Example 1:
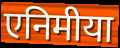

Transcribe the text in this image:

एनिमीया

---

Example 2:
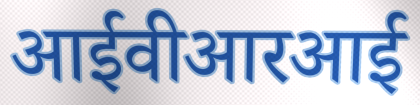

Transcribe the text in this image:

आईवीआरआई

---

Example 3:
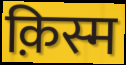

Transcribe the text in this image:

क़िस्‍म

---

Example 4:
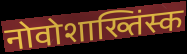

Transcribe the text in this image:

नोवोशाख्तिंस्क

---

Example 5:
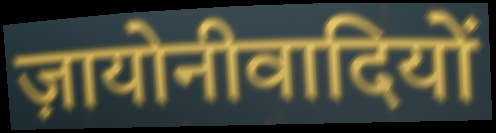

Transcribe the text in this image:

ज़ायोनीवादियों